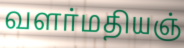
வளர்மதியஞ்